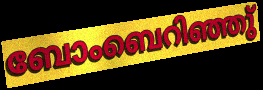
ബോംബെറിഞ്ഞു്